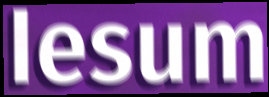
Iesum